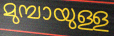
മുമ്പായുള്ള